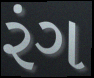
રંગ